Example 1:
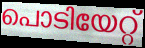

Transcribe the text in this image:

പൊടിയേറ്റ്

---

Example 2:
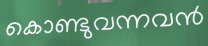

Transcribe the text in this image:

കൊണ്ടുവന്നവൻ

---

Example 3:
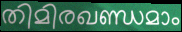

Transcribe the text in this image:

തിമിരഖണ്ഡമാം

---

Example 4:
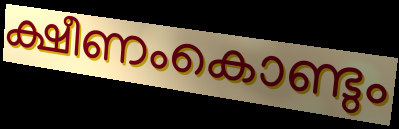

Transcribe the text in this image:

ക്ഷീണംകൊണ്ടും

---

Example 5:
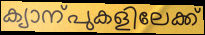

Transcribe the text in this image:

ക്യാന്പുകളിലേക്ക്